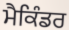
ਮੈਕਿੰਡਰ